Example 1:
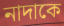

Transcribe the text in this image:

নাদাকে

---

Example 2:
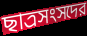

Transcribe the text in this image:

ছাত্রসংসদের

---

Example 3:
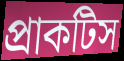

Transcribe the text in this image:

প্রাকটিস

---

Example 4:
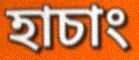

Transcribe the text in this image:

হাচাং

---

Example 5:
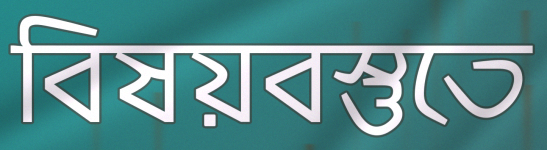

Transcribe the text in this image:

বিষয়বস্তুতে